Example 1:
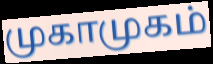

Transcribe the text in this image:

முகாமுகம்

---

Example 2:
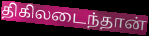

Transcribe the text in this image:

திகிலடைந்தான்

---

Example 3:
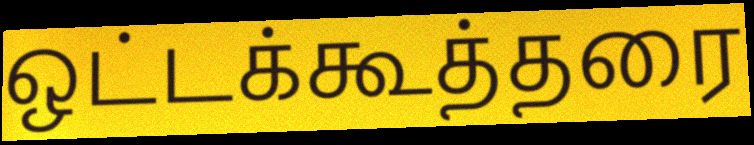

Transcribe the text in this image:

ஒட்டக்கூத்தரை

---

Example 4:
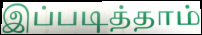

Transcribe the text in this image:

இப்படித்தாம்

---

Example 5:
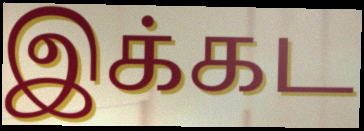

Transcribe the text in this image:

இக்கட